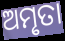
ଅମୃତା